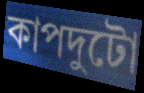
কাপদুটো